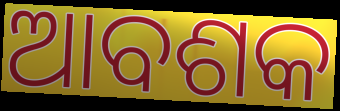
ଆବଶକ